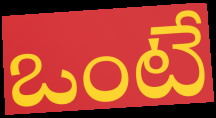
ఒంటే